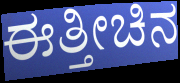
ಈತ್ತೀಚಿನ